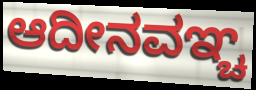
ಆದೀನವಞ್ಚ